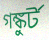
গঙ্কুর্ট